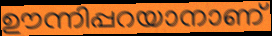
ഊന്നിപ്പറയാനാണ്